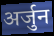
अर्जुन